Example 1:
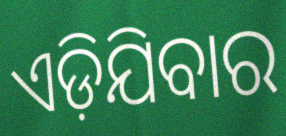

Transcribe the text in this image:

ଏଡ଼ିଯିବାର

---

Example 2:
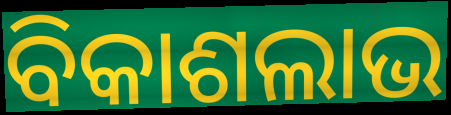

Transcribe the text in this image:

ବିକାଶଲାଭ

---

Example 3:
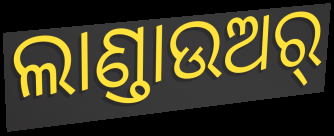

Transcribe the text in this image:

ଲାଣ୍ଡାଉଅର୍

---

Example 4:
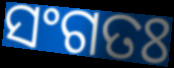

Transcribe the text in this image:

ସଂଗତଃ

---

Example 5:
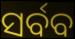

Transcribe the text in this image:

ସର୍ବବ